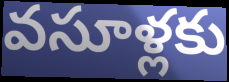
వసూళ్లకు